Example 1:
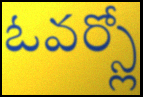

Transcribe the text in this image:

ఓవర్స్లో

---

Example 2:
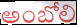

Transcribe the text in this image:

అంబోలి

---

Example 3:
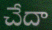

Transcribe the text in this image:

చేదా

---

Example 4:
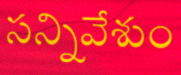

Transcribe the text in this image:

సన్నివేశుం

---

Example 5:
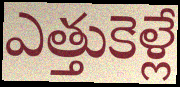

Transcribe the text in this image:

ఎత్తుకెళ్లే